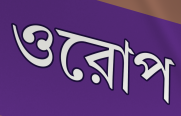
ওরোপ